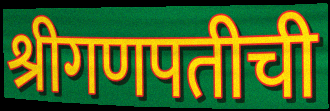
श्रीगणपतीची